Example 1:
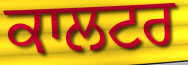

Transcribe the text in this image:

ਕਾਲਟਰ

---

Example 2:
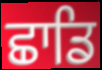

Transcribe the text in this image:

ਛਾਡਿ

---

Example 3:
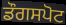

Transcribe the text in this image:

ਡੌਗਸਪੋਟ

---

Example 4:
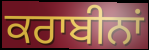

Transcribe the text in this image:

ਕਰਾਬੀਨਾਂ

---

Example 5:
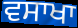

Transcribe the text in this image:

ਵਸਾਖਾ